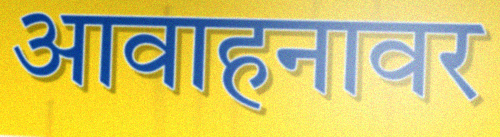
आवाहनावर